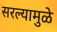
सरल्यामुळे